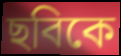
ছবিকে